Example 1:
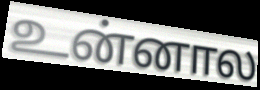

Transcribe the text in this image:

உன்னால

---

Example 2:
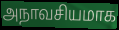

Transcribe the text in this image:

அநாவசியமாக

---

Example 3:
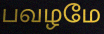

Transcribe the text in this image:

பவழமே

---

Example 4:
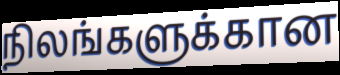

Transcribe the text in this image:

நிலங்களுக்கான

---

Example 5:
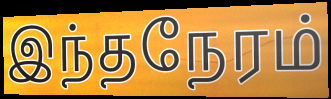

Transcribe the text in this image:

இந்தநேரம்